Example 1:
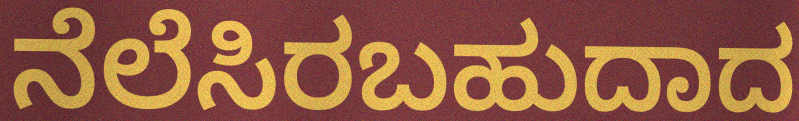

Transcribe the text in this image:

ನೆಲೆಸಿರಬಹುದಾದ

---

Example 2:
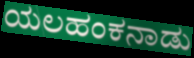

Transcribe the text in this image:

ಯಲಹಂಕನಾಡು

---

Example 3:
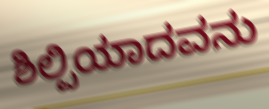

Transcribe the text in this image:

ಶಿಲ್ಪಿಯಾದವನು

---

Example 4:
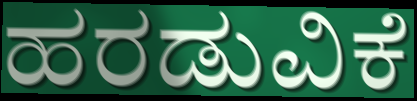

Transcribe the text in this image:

ಹರಡುವಿಕೆ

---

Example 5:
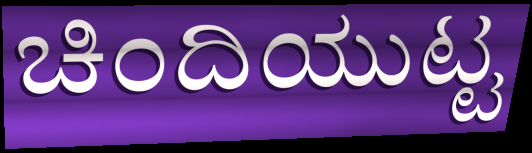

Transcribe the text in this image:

ಚಿಂದಿಯುಟ್ಟ